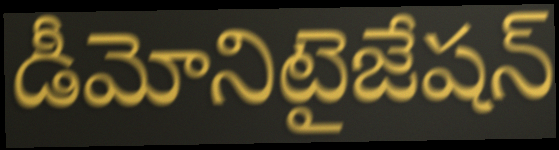
డీమోనిటైజేషన్